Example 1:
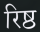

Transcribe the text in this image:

रिष्ठ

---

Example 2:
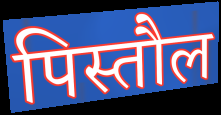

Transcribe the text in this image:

पिस्तौल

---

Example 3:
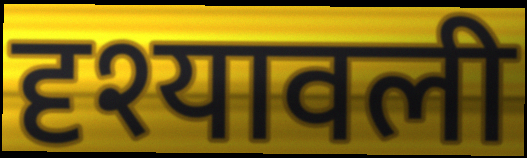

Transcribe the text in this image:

दृश्यावली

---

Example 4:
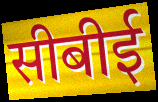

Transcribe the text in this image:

सीबीई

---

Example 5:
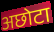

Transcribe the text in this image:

अछोटा